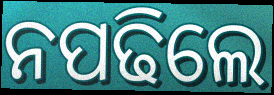
ନପଢିଲେ